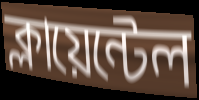
ক্লায়েন্টেল